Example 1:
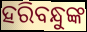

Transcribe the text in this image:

ହରିବନ୍ଧୁଙ୍କ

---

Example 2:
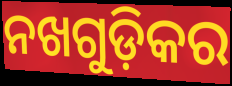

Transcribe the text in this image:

ନଖଗୁଡ଼ିକର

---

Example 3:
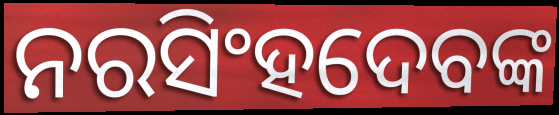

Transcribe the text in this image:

ନରସିଂହଦେବଙ୍କ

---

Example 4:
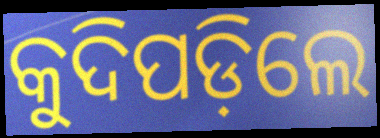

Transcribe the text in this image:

କୁଦିପଡ଼ିଲେ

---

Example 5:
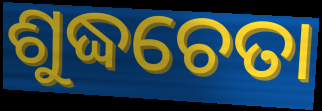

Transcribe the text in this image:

ଶୁଦ୍ଧଚେତା